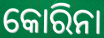
କୋରିନା